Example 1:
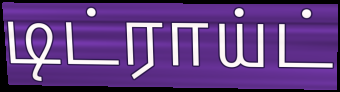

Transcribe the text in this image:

டிட்ராய்ட்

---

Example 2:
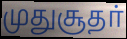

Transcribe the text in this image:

முதுசூதர்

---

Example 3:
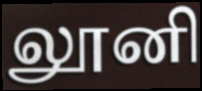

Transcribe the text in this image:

லூனி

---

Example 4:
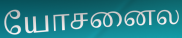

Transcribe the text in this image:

யோசனைல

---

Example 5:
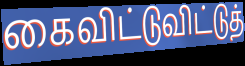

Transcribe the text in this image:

கைவிட்டுவிட்டுத்